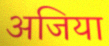
अजिया